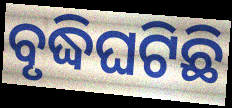
ବୃଦ୍ଧିଘଟିଛି